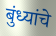
बुंध्यांचे